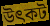
উৎকট